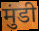
मुंडी